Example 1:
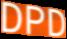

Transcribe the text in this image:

DPD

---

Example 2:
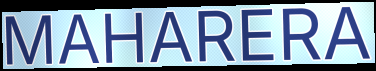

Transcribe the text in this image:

MAHARERA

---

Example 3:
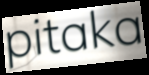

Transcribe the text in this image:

pitaka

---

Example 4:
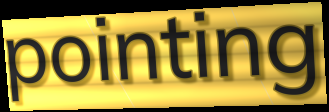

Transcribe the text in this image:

pointing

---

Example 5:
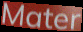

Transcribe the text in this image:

Mater